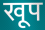
खूप